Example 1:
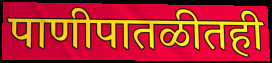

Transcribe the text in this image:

पाणीपातळीतही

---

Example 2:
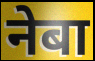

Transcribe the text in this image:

नेबा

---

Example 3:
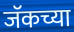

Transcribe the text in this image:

जॅकच्या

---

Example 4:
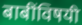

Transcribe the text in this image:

बाबींविषयी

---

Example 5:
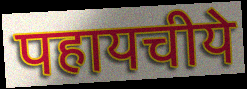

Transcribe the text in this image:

पहायचीये